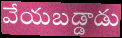
వేయబడ్డాడు